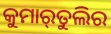
କୁମାର୍‌ତୁଲିର